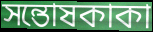
সন্তোষকাকা